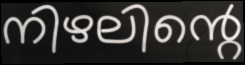
നിഴലിന്റെ